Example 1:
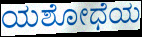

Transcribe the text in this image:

ಯಶೋಧೆಯ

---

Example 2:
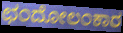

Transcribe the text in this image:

ಛಂದೋಲಂಕಾರ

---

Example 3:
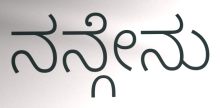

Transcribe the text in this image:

ನನ್ಗೇನು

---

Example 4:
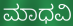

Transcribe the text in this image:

ಮಾಧವಿ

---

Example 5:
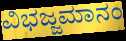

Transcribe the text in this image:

ವಿಭಜ್ಜಮಾನಂ